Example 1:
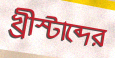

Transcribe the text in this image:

খ্রীস্টাব্দের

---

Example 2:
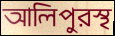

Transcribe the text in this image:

আলিপুরস্থ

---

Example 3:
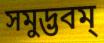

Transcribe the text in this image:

সমুদ্ভবম্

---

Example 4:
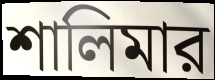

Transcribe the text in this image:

শালিমার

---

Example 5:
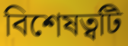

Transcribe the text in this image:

বিশেষত্বটি